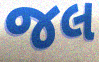
જલ